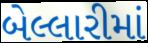
બેલ્લારીમાં